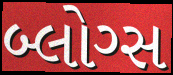
બ્લોગ્સ